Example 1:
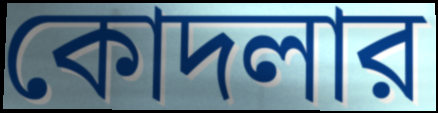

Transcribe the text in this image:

কোদলার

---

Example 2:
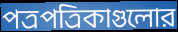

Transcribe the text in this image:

পত্রপত্রিকাগুলোর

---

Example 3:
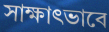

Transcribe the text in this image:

সাক্ষাৎভাবে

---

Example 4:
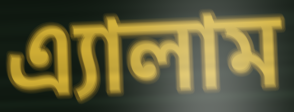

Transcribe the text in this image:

এ্যালাম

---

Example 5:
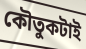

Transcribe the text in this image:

কৌতুকটাই